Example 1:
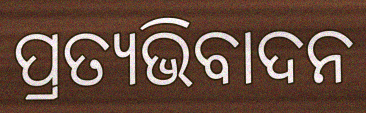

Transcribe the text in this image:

ପ୍ରତ୍ୟଭିବାଦନ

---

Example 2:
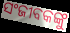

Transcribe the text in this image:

ସଂଜୀବକଙ୍କୁ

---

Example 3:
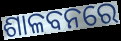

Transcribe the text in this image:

ଶାଳବନରେ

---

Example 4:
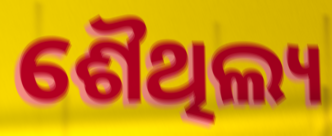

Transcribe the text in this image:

ଶୈଥିଲ୍ୟ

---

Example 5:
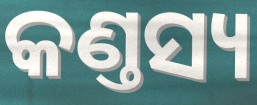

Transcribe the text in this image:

କଣ୍ତସ୍ୟ